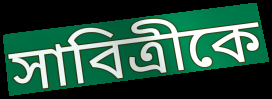
সাবিত্রীকে